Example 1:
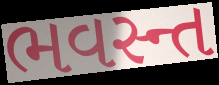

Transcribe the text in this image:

ભવસ્ન્ત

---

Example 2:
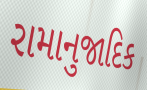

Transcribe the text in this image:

રામાનુજાદિક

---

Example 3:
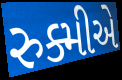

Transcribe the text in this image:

રુક્મીએ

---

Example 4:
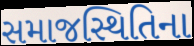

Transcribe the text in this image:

સમાજસ્થિતિના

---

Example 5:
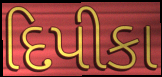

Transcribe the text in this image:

દિપીકા